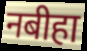
नबीहा